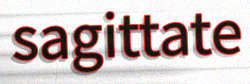
sagittate